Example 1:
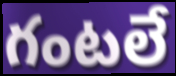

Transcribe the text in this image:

గంటలే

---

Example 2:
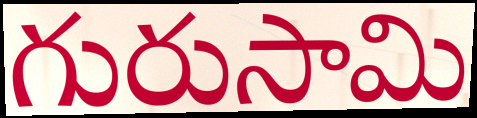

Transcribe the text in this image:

గురుసామి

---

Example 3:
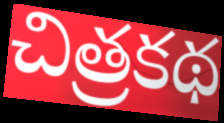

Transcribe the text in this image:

చిత్రకథ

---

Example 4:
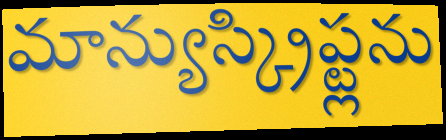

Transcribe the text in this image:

మాన్యుస్క్రిప్ట్లను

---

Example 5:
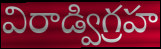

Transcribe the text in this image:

విరాడ్విగ్రహ